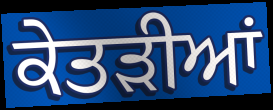
ਕੇਤੜੀਆਂ